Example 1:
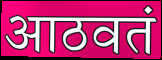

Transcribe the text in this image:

आठवतं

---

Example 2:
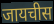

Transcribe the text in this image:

जायचीस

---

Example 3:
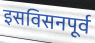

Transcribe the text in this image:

इसविसनपूर्व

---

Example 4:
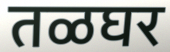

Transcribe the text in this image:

तळघर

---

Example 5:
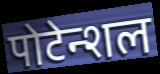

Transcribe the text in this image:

पोटेन्शल